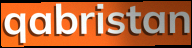
qabristan